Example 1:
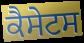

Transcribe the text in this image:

ਕੈਸੇਟਸ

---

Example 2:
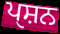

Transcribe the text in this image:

ਪੑਸ਼ਨ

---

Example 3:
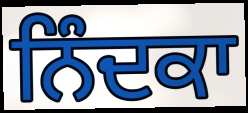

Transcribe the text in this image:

ਨਿੰਦਕਾ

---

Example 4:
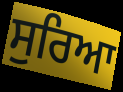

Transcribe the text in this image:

ਸੁਰਿਆ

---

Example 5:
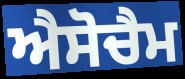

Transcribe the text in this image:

ਐਸੋਚੈਮ